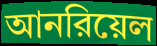
আনরিয়েল